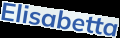
Elisabetta